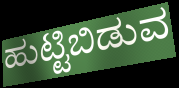
ಹುಟ್ಟಿಬಿಡುವ